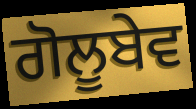
ਗੋਲੂਬੇਵ